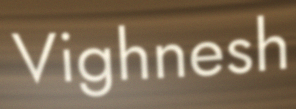
Vighnesh